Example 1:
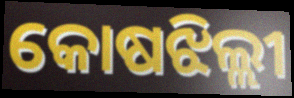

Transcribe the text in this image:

କୋଷଝିଲ୍ଲୀ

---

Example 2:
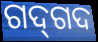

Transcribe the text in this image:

ଗଦ୍‍ଗଦ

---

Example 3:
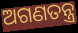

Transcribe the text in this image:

ଅଗଣତନ୍ତ୍ର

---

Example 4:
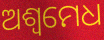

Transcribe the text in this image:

ଅଶ୍ବମେଧ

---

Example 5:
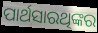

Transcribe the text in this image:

ପାର୍ଥସାରଥିଙ୍କର